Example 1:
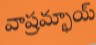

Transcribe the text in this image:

వాష్రమ్భాయ్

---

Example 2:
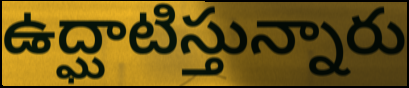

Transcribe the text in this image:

ఉద్ఘాటిస్తున్నారు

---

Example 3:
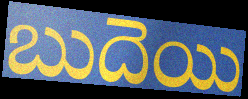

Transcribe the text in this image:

బుదెయి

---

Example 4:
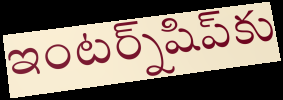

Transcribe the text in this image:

ఇంటర్న్‌షిప్‌కు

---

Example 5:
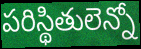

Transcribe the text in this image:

పరిస్థితులెన్నో